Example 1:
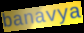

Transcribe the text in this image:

banavya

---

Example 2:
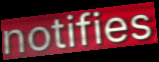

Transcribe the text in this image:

notifies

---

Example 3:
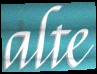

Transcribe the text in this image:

alte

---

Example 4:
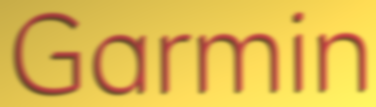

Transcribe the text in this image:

Garmin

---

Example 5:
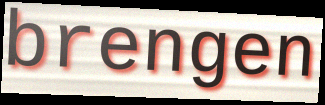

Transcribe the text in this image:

brengen